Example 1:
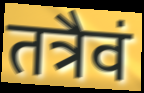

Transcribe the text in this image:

तत्रैवं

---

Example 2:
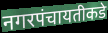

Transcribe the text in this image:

नगरपंचायतीकडे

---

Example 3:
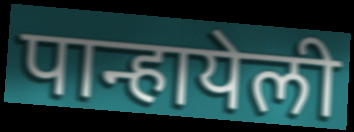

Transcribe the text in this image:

पान्हायेली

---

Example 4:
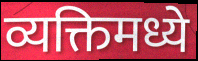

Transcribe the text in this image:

व्यक्तिमध्ये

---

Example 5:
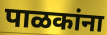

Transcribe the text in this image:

पाळकांना